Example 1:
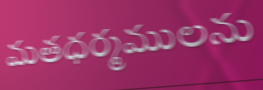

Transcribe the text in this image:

మతధర్మములను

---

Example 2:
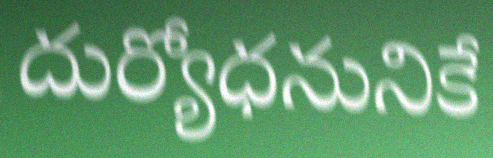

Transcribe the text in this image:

దుర్యోధనునికే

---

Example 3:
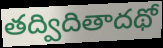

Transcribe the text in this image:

తద్విదితాదథో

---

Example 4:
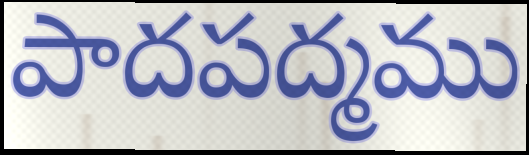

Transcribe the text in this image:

పాదపద్మము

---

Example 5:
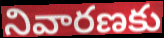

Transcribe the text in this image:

నివారణకు